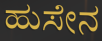
ಹುಸೇನ